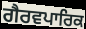
ਗੈਰਵਪਾਰਿਕ